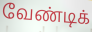
வேண்டிக்